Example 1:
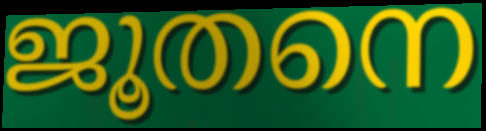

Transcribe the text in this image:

ജൂതനെ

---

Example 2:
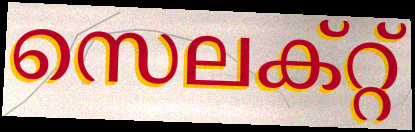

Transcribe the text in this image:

സെലക്റ്റ്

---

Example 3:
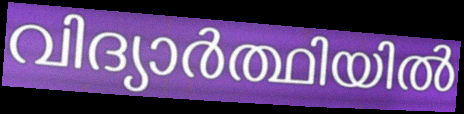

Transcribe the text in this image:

വിദ്യാർത്ഥിയിൽ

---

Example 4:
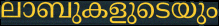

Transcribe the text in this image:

ലാബുകളുടെയും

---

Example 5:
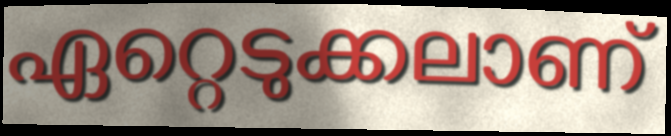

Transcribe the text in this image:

ഏറ്റെടുക്കലാണ്